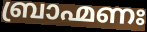
ബ്രാഹ്മണഃ